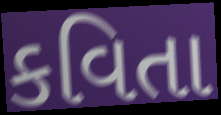
કવિતા